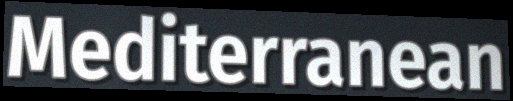
Mediterranean